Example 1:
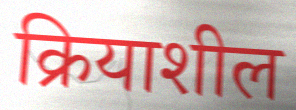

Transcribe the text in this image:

क्रियाशील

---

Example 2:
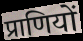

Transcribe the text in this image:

प्राणियों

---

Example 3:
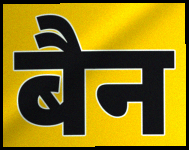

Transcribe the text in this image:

बैन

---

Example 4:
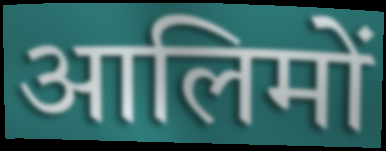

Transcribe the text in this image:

आलिमों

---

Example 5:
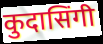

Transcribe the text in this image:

कुदासिंगी